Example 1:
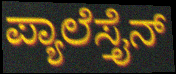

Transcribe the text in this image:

ಪ್ಯಾಲೆಸ್ತೈನ್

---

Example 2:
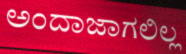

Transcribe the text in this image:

ಅಂದಾಜಾಗಲಿಲ್ಲ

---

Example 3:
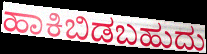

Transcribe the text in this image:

ಹಾಕಿಬಿಡಬಹುದು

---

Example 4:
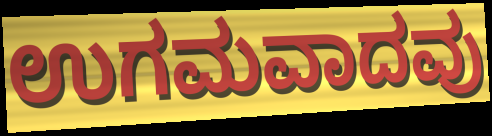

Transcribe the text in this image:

ಉಗಮವಾದವು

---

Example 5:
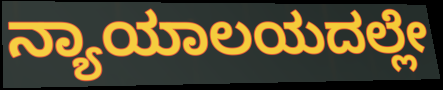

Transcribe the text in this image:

ನ್ಯಾಯಾಲಯದಲ್ಲೇ